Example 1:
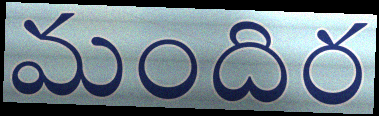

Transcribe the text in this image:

మందిర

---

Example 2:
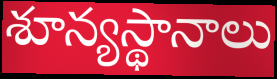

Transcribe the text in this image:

శూన్యస్థానాలు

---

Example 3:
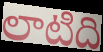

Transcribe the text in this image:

లాటిది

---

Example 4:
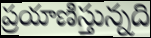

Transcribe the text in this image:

ప్రయాణిస్తున్నది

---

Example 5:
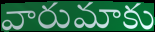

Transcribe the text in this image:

వారుమాకు